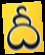
దీ